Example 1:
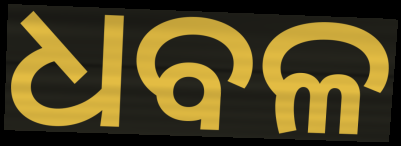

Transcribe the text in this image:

ଧବଳ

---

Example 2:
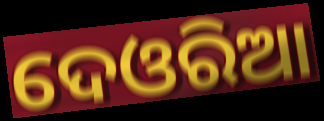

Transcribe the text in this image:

ଦେଓରିଆ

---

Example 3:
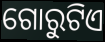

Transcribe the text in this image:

ଗୋରୁଟିଏ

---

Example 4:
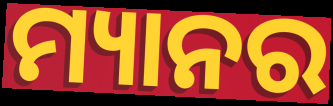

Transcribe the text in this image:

ମ୍ୟାନର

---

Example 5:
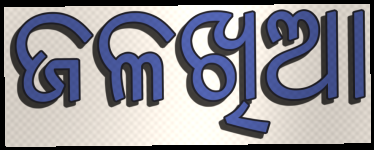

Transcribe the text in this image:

ଜଳଖିଆ